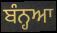
ਬੰਨ੍ਹਆ